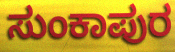
ಸುಂಕಾಪುರ